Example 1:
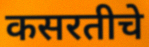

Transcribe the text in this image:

कसरतीचे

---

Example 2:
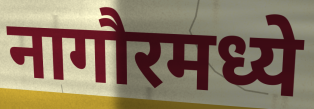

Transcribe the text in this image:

नागौरमध्ये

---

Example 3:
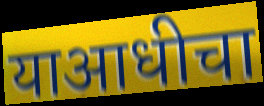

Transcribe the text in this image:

याआधीचा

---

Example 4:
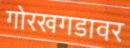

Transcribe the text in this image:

गोरखगडावर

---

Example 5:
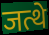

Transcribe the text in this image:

जत्थे